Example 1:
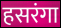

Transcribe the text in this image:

हसरंगा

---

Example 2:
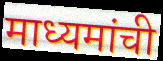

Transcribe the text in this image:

माध्यमांची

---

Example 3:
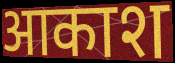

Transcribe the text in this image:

आकाश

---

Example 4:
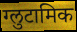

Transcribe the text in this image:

ग्लुटामिक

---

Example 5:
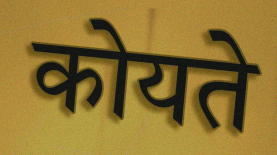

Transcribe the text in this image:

कोयते